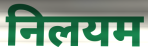
निलयम